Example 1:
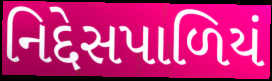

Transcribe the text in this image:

નિદ્દેસપાળિયં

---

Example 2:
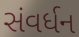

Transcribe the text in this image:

સંવર્ધન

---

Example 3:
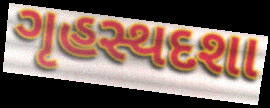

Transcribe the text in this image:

ગૃહસ્થદશા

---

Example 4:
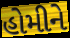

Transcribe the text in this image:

હોમીને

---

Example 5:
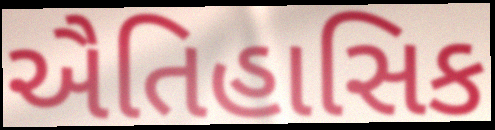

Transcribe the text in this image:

ઐતિહાસિક